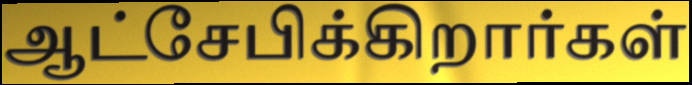
ஆட்சேபிக்கிறார்கள்